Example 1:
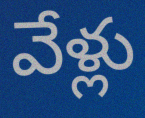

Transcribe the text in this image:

వేళ్లు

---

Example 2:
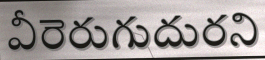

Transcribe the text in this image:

వీరెరుగుదురని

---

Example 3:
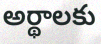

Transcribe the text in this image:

అర్థాలకు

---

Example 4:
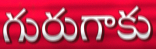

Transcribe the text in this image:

గురుగాకు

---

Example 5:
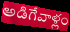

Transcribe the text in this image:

అడిగేవాళ్లం